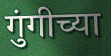
गुंगीच्या